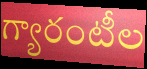
గ్యారంటీల